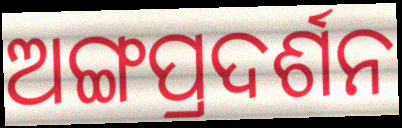
ଅଙ୍ଗପ୍ରଦର୍ଶନ